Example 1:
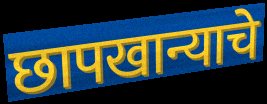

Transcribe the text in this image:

छापखान्याचे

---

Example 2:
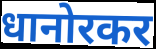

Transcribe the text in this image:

धानोरकर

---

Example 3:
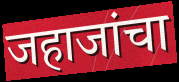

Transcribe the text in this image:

जहाजांचा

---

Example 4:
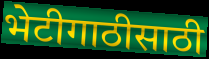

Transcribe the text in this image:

भेटीगाठीसाठी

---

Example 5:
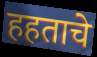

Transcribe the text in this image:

हहताचे